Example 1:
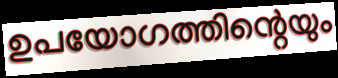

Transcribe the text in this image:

ഉപയോഗത്തിന്റെയും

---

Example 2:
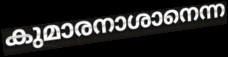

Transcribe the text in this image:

കുമാരനാശാനെന്ന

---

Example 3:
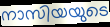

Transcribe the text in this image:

നാസിയയുടെ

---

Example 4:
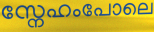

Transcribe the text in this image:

സ്നേഹംപോലെ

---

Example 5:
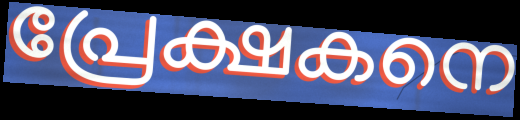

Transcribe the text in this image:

പ്രേക്ഷകനെ